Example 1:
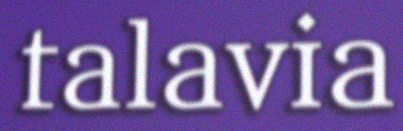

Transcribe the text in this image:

talavia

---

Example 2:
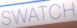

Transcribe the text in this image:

SWATCH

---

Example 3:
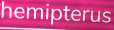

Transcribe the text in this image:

hemipterus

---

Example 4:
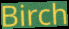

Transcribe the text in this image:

Birch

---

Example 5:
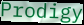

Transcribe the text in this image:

Prodigy